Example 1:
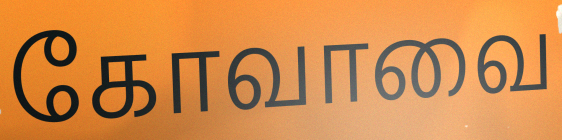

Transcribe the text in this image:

கோவாவை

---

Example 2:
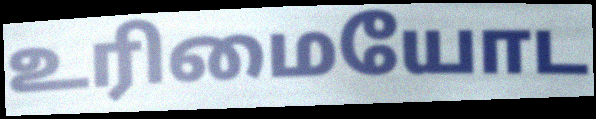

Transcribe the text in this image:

உரிமையோட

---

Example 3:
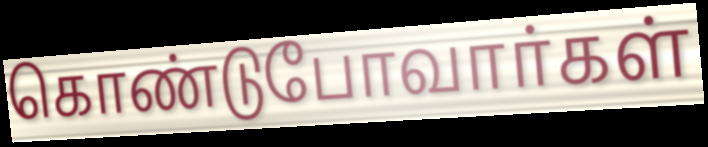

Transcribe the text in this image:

கொண்டுபோவார்கள்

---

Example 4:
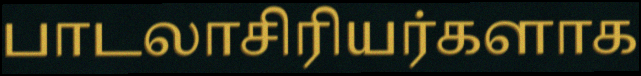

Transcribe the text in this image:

பாடலாசிரியர்களாக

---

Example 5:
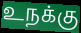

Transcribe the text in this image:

உநக்கு